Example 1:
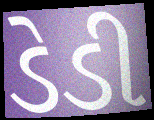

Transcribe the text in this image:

ડેડી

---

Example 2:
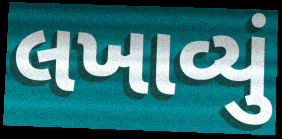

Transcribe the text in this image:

લખાવ્યું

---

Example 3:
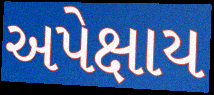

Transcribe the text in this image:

અપેક્ષાય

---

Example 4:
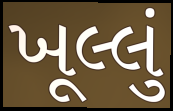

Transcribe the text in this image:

ખૂલ્લું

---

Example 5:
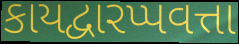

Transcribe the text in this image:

કાયદ્વારપ્પવત્તા